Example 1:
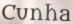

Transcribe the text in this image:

Cunha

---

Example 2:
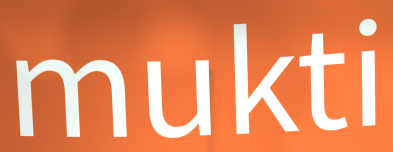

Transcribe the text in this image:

mukti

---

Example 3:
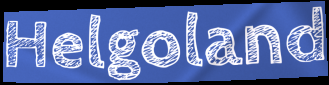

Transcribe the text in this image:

Helgoland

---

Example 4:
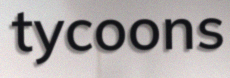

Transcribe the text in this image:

tycoons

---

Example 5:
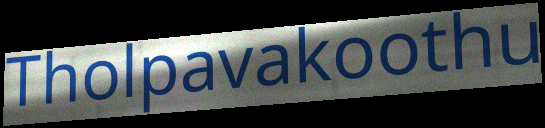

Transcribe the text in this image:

Tholpavakoothu